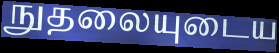
நுதலையுடைய